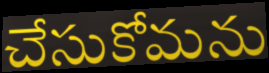
చేసుకోమను